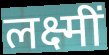
लक्ष्मीं